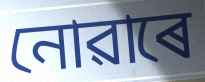
নোৱাৰে